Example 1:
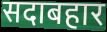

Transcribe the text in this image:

सदाबहार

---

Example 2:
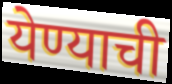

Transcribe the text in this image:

येण्याची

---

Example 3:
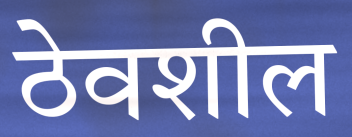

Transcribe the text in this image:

ठेवशील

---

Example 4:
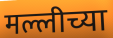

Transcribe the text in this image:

मल्लीच्या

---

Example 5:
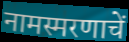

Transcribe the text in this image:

नामस्मरणाचें